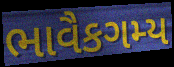
ભાવૈકગમ્ય